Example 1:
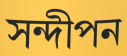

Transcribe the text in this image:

সন্দীপন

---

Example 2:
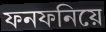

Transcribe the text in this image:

ফনফনিয়ে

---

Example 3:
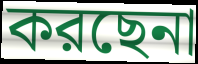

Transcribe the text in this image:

করছেনা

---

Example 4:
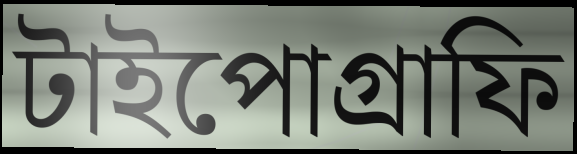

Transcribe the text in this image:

টাইপোগ্রাফি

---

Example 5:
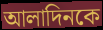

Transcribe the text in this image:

আলাদিনকে